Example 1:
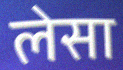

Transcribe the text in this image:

लेसा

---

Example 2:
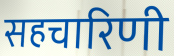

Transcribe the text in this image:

सहचारिणी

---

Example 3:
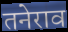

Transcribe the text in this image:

तनेराव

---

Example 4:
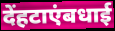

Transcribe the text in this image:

देंहटाएंबधाई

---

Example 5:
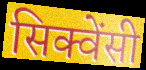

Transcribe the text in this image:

सिक्वेंसी